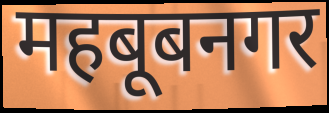
महबूबनगर